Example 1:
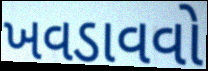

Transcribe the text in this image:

ખવડાવવો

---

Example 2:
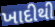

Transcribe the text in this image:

ખાદીથી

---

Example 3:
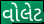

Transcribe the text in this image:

વોલેટ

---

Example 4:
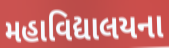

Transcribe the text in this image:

મહાવિદ્યાલયના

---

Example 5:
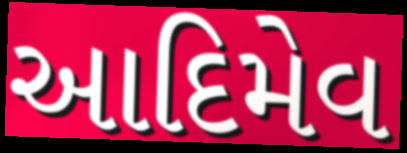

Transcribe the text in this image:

આદિમેવ